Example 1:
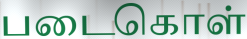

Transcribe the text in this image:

படைகொள்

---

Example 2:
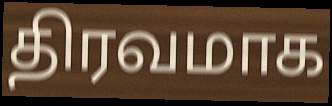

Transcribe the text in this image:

திரவமாக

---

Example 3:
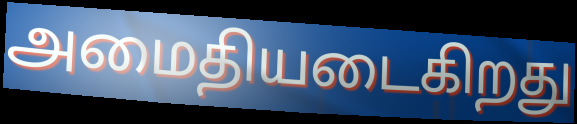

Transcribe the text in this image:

அமைதியடைகிறது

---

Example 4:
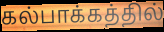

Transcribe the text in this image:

கல்பாக்கத்தில்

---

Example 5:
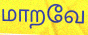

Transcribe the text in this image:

மாறவே